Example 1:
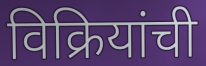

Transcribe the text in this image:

विक्रियांची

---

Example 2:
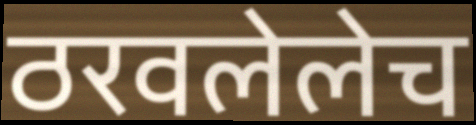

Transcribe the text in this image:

ठरवलेलेच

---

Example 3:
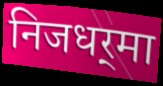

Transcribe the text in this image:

निजधर्मा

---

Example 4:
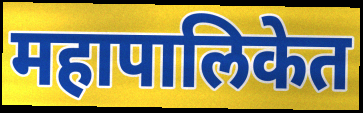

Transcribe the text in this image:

महापालिकेत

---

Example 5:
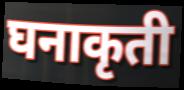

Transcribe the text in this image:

घनाकृती